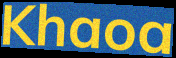
Khaoa